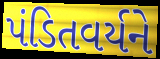
પંડિતવર્યને